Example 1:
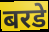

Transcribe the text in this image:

बरडे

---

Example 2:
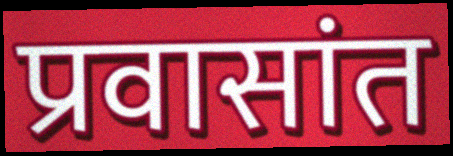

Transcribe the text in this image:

प्रवासांत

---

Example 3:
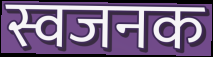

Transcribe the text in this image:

स्वजनक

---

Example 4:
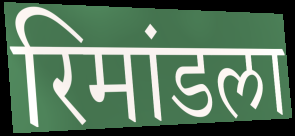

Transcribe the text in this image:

रिमांडला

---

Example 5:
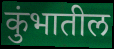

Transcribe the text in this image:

कुंभातील